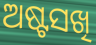
ଅଷ୍ଟସଖି